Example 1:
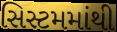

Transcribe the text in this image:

સિસ્ટમમાંથી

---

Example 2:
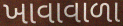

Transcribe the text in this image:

ખાવાવાળા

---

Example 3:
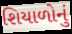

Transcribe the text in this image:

શિયાળોનું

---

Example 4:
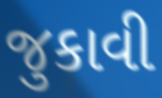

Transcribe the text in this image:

જુકાવી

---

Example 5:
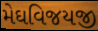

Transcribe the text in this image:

મેઘવિજયજી